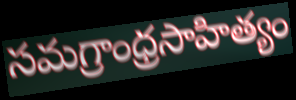
సమగ్రాంధ్రసాహిత్యం